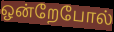
ஒன்றேபோல்